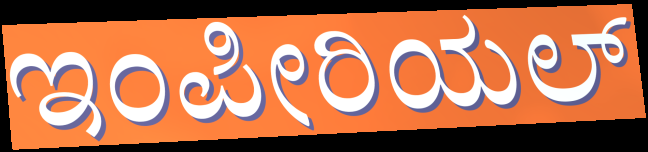
ಇಂಪೀರಿಯಲ್